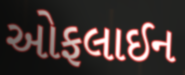
ઓફલાઈન